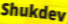
Shukdev